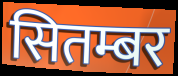
सितम्बर